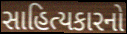
સાહિત્યકારનો